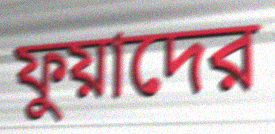
ফুয়াদের